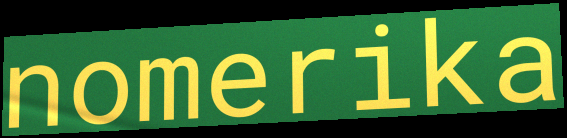
nomerika